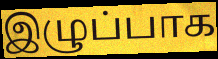
இழுப்பாக